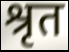
श्रृत